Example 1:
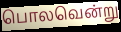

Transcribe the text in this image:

பொலவென்று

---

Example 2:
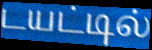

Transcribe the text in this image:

டயட்டில்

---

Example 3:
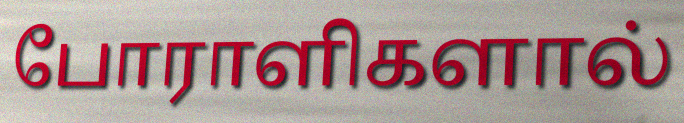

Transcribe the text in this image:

போராளிகளால்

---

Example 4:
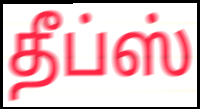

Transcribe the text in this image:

தீப்ஸ்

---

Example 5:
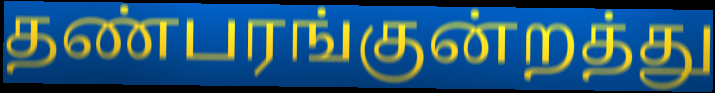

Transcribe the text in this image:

தண்பரங்குன்றத்து